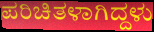
ಪರಿಚಿತಳಾಗಿದ್ದಳು